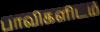
பாவிகளிடம்